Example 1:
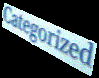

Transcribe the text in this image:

Categorized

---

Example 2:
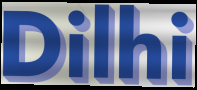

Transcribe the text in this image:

Dilhi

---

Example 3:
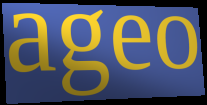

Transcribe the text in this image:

ageo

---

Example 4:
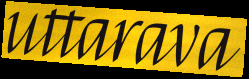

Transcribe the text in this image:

uttarava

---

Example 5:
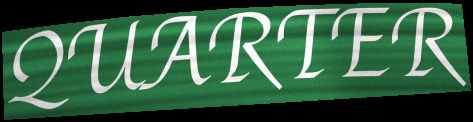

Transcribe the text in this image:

QUARTER